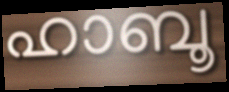
ഹാബൂ